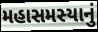
મહાસમસ્યાનું